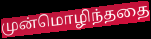
முன்மொழிந்ததை